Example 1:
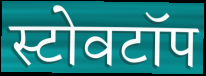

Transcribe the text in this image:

स्टोवटॉप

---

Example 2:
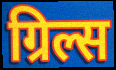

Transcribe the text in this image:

ग्रिल्स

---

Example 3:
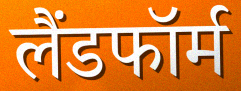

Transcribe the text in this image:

लैंडफॉर्म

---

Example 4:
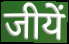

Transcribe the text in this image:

जीयें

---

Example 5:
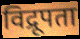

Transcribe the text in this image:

विद्रूपता